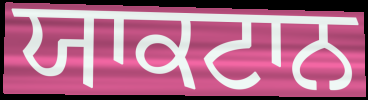
ਯਾਕਟਾਨ